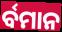
ର୍ବମାନ